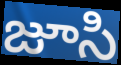
జూసి